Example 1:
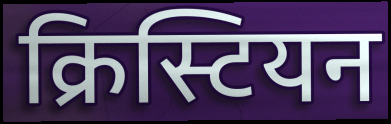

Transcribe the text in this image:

क्रिस्टियन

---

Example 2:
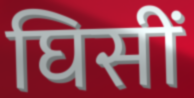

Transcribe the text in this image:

घिसीं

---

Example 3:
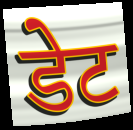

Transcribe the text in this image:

डेट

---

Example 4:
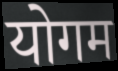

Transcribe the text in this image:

योगम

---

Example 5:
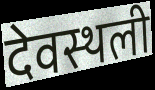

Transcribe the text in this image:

देवस्थली